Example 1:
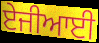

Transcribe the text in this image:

ਏਜੀਆਈ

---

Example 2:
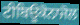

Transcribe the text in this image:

ਟੀਬਿਊਕੋਨਾਜੋਲ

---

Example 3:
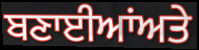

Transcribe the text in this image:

ਬਣਾਈਆਂਅਤੇ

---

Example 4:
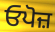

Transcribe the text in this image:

ਓਪੋਜ਼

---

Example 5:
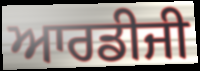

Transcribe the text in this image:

ਆਰਡੀਜੀ